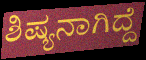
ಶಿಷ್ಯನಾಗಿದ್ದೆ